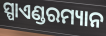
ସ୍ପାଏଣ୍ଡରମ୍ୟାନ